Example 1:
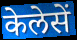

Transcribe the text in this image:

केलेसें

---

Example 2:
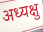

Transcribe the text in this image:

अध्यक्षु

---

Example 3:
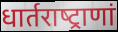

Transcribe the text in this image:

धार्तराष्ट्राणां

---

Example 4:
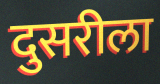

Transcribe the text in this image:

दुसरीला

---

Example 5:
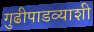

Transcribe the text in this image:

गुढीपाडव्याशी